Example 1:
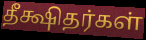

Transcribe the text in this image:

தீக்ஷிதர்கள்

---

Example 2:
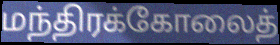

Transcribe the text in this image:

மந்திரக்கோலைத்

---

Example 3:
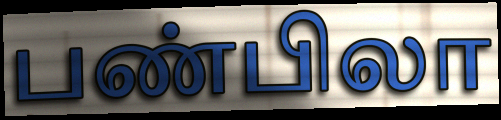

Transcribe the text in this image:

பண்பிலா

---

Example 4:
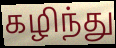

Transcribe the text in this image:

கழிந்து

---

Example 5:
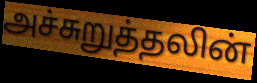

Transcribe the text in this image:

அச்சுறுத்தலின்